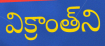
విక్రాంత్‌ని